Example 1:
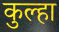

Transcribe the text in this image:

कुल्हा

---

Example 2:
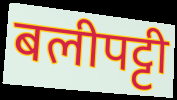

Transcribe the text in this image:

बलीपट्टी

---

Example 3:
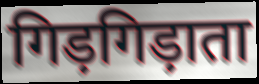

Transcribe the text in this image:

गिड़गिड़ाता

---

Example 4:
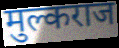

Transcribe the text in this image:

मुल्कराज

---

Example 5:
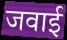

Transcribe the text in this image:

जवाई